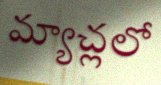
మ్యాచ్లలో